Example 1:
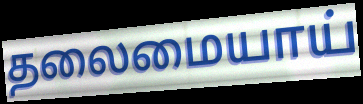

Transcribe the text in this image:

தலைமையாய்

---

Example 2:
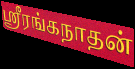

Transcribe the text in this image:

ஸ்ரீரங்கநாதன்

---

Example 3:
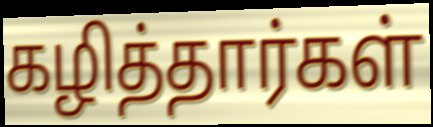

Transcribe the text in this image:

கழித்தார்கள்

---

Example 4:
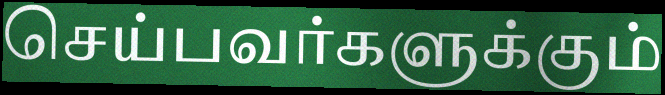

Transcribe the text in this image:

செய்பவர்களுக்கும்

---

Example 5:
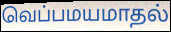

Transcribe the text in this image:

வெப்பமயமாதல்